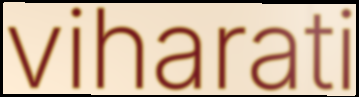
viharati